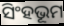
ସିଂହଭୂମ